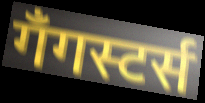
गँगस्टर्स